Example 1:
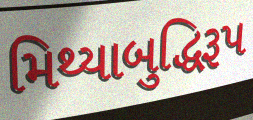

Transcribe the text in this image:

મિથ્યાબુદ્ધિરૂપ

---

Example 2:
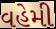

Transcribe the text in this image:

વહેમી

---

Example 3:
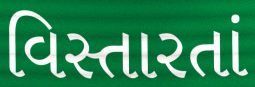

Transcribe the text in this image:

વિસ્તારતાં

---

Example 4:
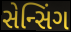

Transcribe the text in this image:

સેન્સિંગ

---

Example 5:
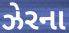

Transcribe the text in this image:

ઝેરના